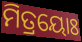
ମିତ୍ରୟୋଃ